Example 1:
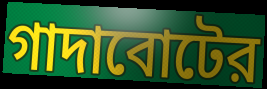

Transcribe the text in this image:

গাদাবোটের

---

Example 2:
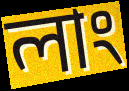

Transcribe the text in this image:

লাং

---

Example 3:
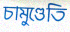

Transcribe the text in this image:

চামুণ্ডেতি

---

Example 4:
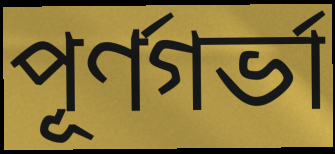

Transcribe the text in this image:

পূর্ণগর্ভা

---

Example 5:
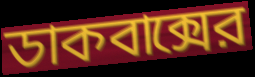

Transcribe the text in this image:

ডাকবাক্সের